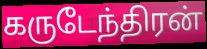
கருடேந்திரன்